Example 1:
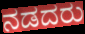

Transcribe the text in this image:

ನಡದರು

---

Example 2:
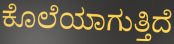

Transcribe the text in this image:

ಕೊಲೆಯಾಗುತ್ತಿದೆ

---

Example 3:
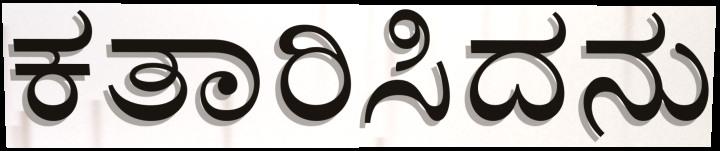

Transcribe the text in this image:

ಕತಾರಿಸಿದನು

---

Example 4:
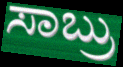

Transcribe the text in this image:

ಸಾಬ್ರು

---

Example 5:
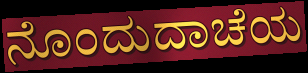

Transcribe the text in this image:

ನೊಂದುದಾಚೆಯ